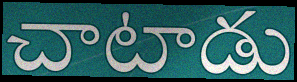
చాటాడు